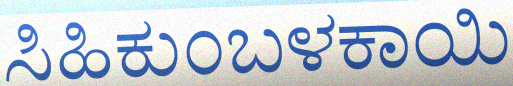
ಸಿಹಿಕುಂಬಳಕಾಯಿ